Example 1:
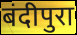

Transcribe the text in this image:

बंदीपुरा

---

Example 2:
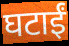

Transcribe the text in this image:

घटाईं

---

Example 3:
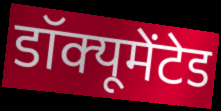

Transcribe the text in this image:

डॉक्यूमेंटेड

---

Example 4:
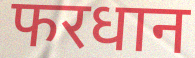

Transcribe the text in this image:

फरधान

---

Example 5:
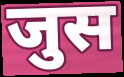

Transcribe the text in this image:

जुस